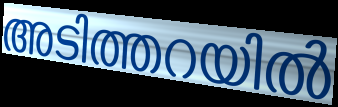
അടിത്തറയിൽ